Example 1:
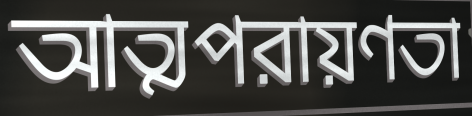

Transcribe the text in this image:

আত্মপরায়ণতা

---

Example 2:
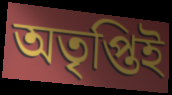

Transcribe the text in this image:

অতৃপ্তিই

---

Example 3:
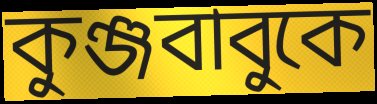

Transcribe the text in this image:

কুঞ্জবাবুকে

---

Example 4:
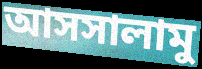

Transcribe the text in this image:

আসসালামু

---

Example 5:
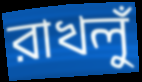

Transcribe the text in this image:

রাখলুঁ